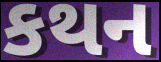
કથન